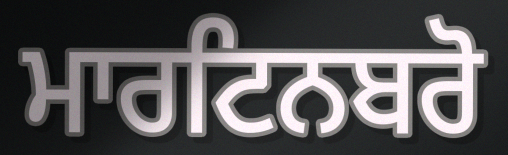
ਮਾਰਟਿਨਬਰੋ